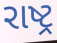
રાષ્ટ્ર